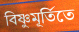
বিষ্ণুমূর্তিতে